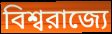
বিশ্বরাজ্যে